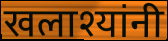
खलाश्यांनी